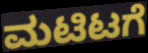
ಮಟಿಟಗೆ